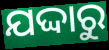
ଯଦ୍ଦାରୁ